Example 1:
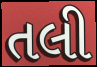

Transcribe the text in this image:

તલી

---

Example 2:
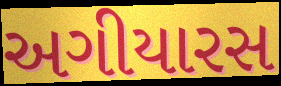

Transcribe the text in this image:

અગીયારસ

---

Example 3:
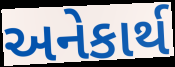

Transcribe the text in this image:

અનેકાર્થ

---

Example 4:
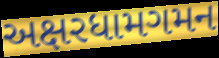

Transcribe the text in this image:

અક્ષરધામગમન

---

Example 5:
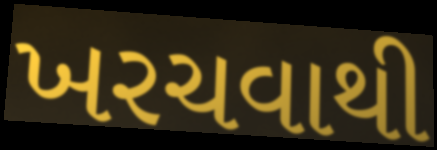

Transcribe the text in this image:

ખરચવાથી